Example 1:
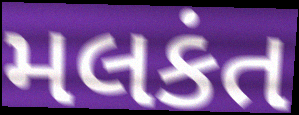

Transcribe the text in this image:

મલકંત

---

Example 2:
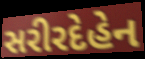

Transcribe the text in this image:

સરીરદેહેન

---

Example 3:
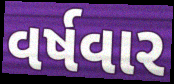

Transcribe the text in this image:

વર્ષવાર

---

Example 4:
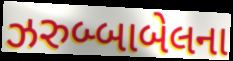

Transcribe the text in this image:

ઝરુબ્બાબેલના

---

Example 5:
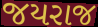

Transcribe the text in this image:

જયરાજ